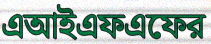
এআইএফএফের